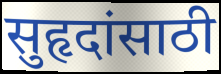
सुहृदांसाठी